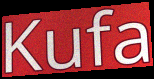
Kufa